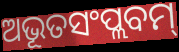
ଅଭୂତସଂପ୍ଲବମ୍